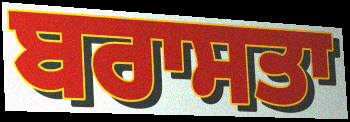
ਬਰਾਸਤਾ